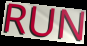
RUN